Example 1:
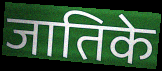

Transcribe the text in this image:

जातिके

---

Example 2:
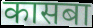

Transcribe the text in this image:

कासबा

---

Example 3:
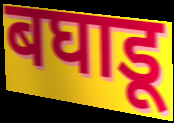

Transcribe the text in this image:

बघाडू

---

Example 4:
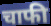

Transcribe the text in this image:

चाफी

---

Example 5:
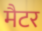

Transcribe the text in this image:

मैटर